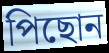
পিছোন